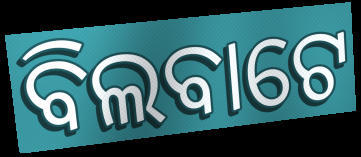
ବିଲବାଟେ